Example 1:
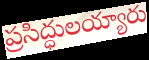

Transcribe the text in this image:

ప్రసిద్ధులయ్యారు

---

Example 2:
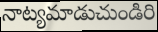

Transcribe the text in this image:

నాట్యమాడుచుండిరి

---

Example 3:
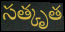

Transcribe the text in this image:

సత్కృత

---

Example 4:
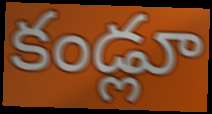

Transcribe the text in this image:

కండ్లూ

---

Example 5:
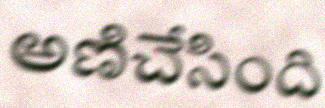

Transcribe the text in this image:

అణిచేసింది